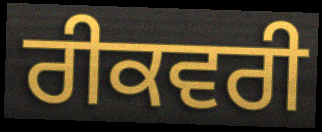
ਰੀਕਵਰੀ